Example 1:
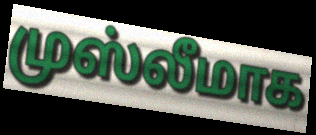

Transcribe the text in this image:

முஸ்லீமாக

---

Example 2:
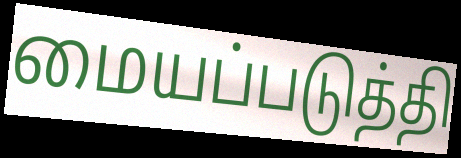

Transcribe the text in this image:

மையப்படுத்தி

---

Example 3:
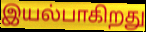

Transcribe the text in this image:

இயல்பாகிறது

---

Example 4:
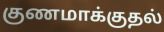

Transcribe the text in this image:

குணமாக்குதல்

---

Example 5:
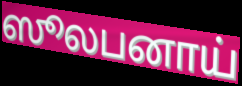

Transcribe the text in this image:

ஸூலபனாய்